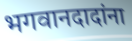
भगवानदादांना